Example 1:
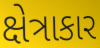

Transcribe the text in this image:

ક્ષેત્રાકાર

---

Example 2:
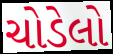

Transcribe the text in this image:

ચોડેલો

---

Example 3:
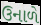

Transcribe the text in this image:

ઉનાળે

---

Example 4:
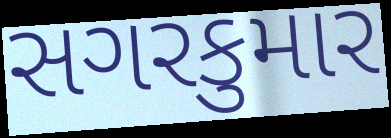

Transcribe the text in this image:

સગરકુમાર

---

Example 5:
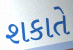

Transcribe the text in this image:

શકાતે